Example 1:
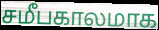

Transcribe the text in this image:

சமீபகாலமாக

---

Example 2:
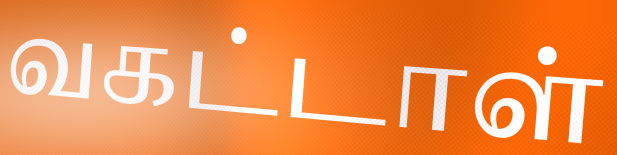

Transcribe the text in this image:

வகட்டாள்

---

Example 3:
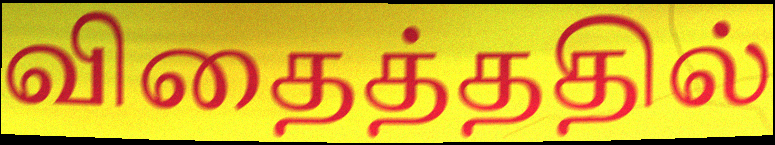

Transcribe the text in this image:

விதைத்ததில்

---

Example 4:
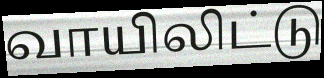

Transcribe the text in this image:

வாயிலிட்டு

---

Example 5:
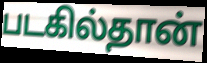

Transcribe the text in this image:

படகில்தான்